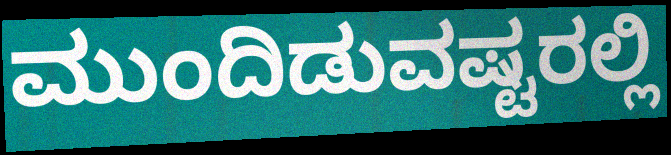
ಮುಂದಿಡುವಷ್ಟರಲ್ಲಿ